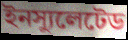
ইনস্যুলেটেড